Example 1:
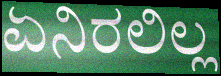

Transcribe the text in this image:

ಏನಿರಲಿಲ್ಲ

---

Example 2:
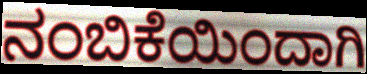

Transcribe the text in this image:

ನಂಬಿಕೆಯಿಂದಾಗಿ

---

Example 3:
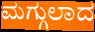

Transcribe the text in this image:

ಮಗ್ಗುಲಾದ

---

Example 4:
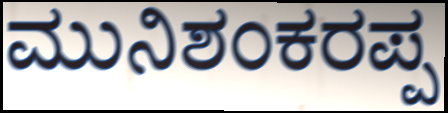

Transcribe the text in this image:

ಮುನಿಶಂಕರಪ್ಪ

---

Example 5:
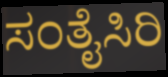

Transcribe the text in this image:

ಸಂತೈಸಿರಿ